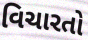
વિચારતો